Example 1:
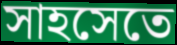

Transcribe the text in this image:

সাহসেতে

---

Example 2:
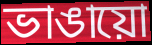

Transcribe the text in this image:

ভাঙায়ো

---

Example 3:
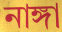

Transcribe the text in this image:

নাঙ্গা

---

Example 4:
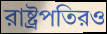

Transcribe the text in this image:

রাষ্ট্রপতিরও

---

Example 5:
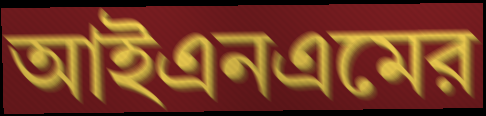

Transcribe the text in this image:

আইএনএমের